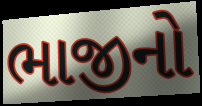
ભાજીનો